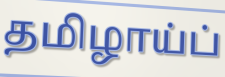
தமிழாய்ப்